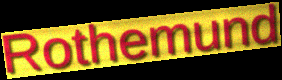
Rothemund